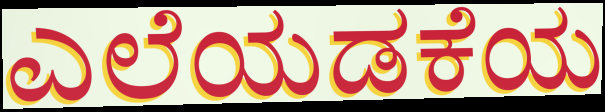
ಎಲೆಯಡಕೆಯ